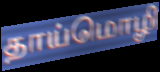
தாய்மொழி